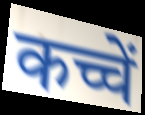
कच्चें